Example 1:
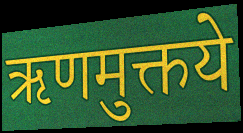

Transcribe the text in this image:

ऋणमुक्तये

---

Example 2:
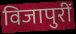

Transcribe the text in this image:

विजापुरीं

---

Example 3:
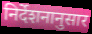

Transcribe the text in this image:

निर्देशनानुसार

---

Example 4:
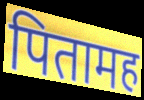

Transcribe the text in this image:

पितामह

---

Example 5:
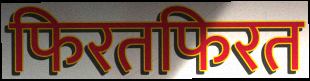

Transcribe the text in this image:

फिरतफिरत